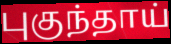
புகுந்தாய்